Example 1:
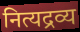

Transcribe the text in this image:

नित्यद्रव्य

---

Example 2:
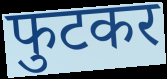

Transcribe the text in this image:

फुटकर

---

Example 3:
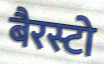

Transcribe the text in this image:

बैरस्टो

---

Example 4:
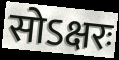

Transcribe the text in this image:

सोऽक्षरः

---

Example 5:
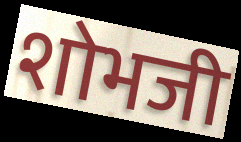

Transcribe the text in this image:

शोभजी